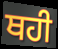
ਥਹੀ